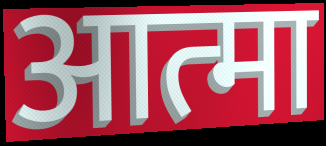
आत्‍मा